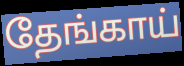
தேங்காய்